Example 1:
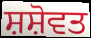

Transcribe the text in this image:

ਸ਼ਸ਼ੋਵਤ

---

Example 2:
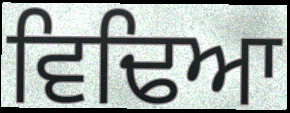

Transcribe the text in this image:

ਵਿਢਿਆ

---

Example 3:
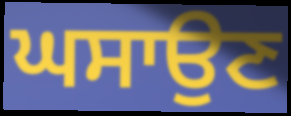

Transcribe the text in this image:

ਘਸਾਉਣ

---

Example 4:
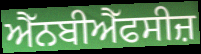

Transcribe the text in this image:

ਐੱਨਬੀਐੱਫਸੀਜ਼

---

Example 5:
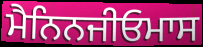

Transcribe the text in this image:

ਮੈਨਿਨਜੀਓਮਾਸ